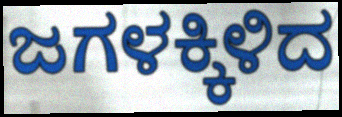
ಜಗಳಕ್ಕಿಳಿದ